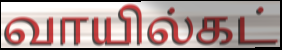
வாயில்கட்